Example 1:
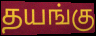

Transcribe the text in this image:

தயங்கு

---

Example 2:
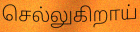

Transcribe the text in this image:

செல்லுகிறாய்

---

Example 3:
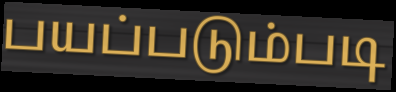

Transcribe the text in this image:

பயப்படும்படி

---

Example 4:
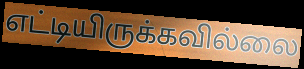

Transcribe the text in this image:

எட்டியிருக்கவில்லை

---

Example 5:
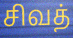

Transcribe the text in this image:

சிவத்